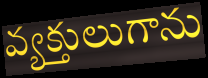
వ్యక్తులుగాను